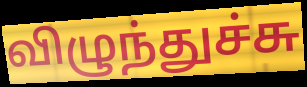
விழுந்துச்சு